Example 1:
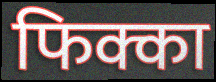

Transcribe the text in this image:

फिक्का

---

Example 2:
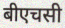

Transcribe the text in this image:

बीएचसी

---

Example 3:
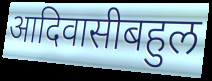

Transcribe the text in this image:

आदिवासीबहुल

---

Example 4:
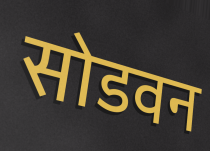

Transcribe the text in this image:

सोडवन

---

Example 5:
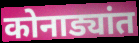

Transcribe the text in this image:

कोनाड्यांत